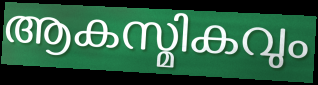
ആകസ്മികവും